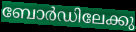
ബോർഡിലേക്കു